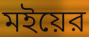
মইয়ের